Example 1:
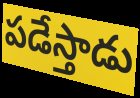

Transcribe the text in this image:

పడేస్తాడు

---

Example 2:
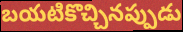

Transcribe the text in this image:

బయటికొచ్చినప్పుడు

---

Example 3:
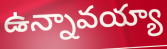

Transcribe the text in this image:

ఉన్నావయ్యా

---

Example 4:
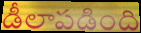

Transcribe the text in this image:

డీలాపడింది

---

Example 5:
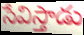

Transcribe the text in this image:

సేవిస్తాడు